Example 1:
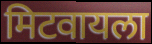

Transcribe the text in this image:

मिटवायला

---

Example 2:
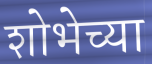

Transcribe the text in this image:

शोभेच्या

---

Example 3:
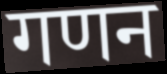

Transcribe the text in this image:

गणन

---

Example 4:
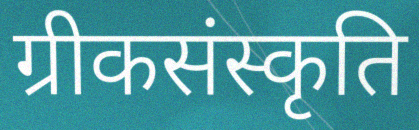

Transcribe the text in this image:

ग्रीकसंस्कृति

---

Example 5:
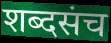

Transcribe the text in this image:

शब्दसंच